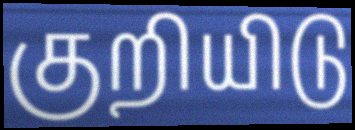
குறியிடு